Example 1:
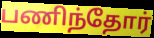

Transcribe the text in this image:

பணிந்தோர்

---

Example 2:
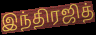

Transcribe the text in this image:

இந்திரஜித்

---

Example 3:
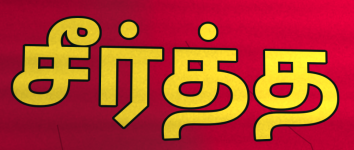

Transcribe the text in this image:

சீர்த்த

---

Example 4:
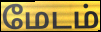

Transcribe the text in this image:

மேடம்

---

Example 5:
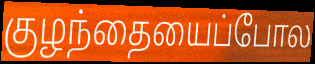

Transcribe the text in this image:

குழந்தையைப்போல